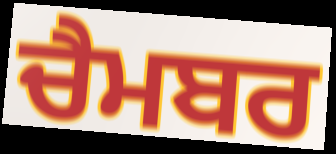
ਚੈਮਬਰ